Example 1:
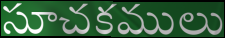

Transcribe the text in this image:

సూచకములు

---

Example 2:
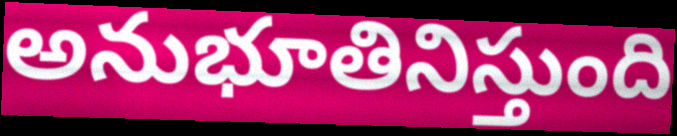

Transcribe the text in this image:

అనుభూతినిస్తుంది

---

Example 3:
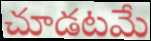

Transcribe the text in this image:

చూడటమే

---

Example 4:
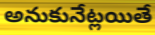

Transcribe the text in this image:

అనుకునేట్లయితే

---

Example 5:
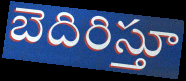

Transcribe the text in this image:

బెదిరిస్తూ